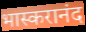
भास्करानंद